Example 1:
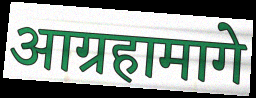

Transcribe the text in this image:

आग्रहामागे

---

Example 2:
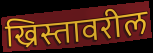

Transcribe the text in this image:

ख्रिस्तावरील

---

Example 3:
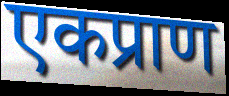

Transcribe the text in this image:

एकप्राण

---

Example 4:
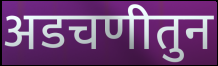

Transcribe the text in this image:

अडचणीतुन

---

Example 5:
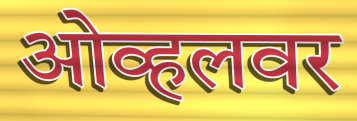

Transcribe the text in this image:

ओव्हलवर